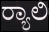
ರ‍್ಯಾಲಿ